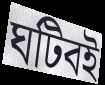
ঘটিবই